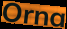
Orna